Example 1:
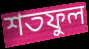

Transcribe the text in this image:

শতফুল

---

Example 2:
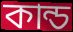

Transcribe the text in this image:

কান্ড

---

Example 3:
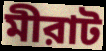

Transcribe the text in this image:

মীরাট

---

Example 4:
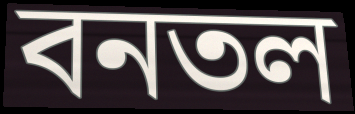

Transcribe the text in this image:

বনতল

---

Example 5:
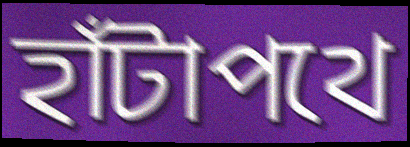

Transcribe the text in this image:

হাঁটাপথে